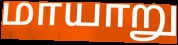
மாயாறு